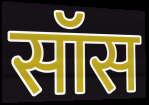
सॉस